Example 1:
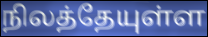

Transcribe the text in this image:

நிலத்தேயுள்ள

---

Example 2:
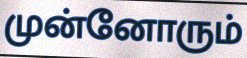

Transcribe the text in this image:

முன்னோரும்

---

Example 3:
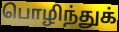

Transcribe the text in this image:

பொழிந்துக்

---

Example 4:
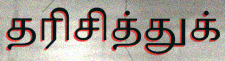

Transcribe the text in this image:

தரிசித்துக்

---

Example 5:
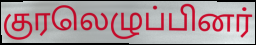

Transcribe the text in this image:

குரலெழுப்பினர்